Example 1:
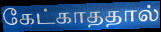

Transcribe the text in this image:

கேட்காததால்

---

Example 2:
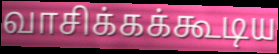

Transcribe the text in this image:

வாசிக்கக்கூடிய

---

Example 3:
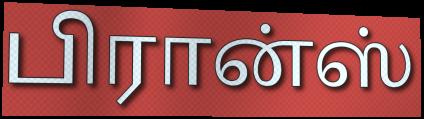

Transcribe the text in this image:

பிரான்ஸ்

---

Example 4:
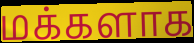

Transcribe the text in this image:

மக்களாக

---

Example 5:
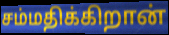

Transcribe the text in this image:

சம்மதிக்கிறான்